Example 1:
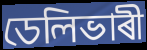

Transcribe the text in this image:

ডেলিভাৰী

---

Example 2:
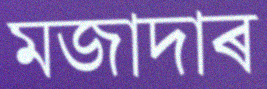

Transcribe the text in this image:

মজাদাৰ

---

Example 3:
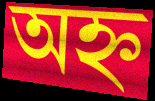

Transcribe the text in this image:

অহ্ন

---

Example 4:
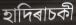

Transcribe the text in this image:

হাদিৰাচকী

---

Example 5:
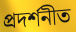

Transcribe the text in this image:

প্ৰদৰ্শনীত